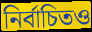
নির্বাচিতও